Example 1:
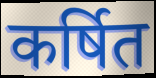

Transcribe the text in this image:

कर्षित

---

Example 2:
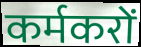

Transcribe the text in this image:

कर्मकरों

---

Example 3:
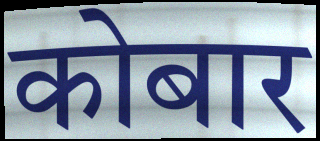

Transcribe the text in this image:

कोबार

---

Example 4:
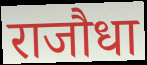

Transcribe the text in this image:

राजौधा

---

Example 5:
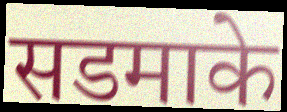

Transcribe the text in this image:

सडमाके